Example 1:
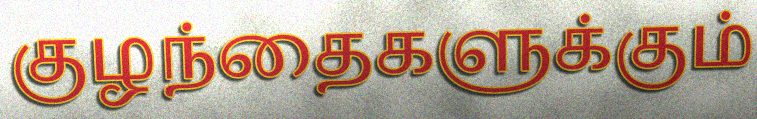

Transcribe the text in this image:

குழந்தைகளுக்கும்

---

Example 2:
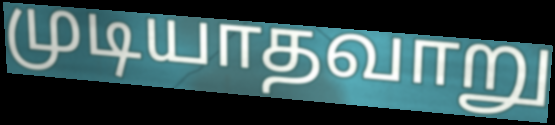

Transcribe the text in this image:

முடியாதவாறு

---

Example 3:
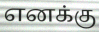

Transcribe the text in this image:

எனக்கு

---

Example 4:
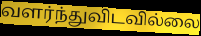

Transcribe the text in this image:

வளர்ந்துவிடவில்லை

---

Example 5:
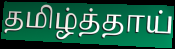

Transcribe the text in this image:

தமிழ்த்தாய்